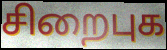
சிறைபுக